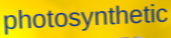
photosynthetic